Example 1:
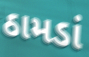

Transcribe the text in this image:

ઠામડાં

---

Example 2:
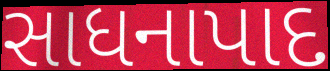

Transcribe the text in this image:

સાધનાપાદ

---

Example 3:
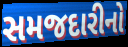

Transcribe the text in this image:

સમજદારીનો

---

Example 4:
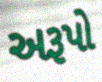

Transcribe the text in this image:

અરૂપો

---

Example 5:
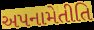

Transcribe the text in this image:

અપનામેતીતિ